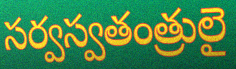
సర్వస్వతంత్రులై